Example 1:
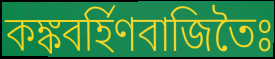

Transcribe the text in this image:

কঙ্কবর্হিণবাজিতৈঃ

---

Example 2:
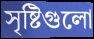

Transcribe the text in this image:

সৃষ্টিগুলো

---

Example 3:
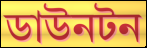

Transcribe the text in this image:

ডাউনটন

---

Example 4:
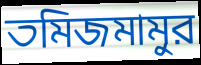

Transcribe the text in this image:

তমিজমামুর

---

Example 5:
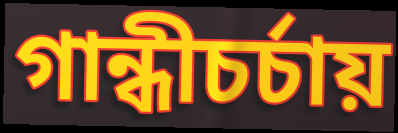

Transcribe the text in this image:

গান্ধীচর্চায়